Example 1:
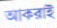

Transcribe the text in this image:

আকরাই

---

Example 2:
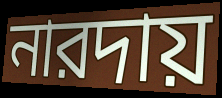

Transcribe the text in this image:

নারদায়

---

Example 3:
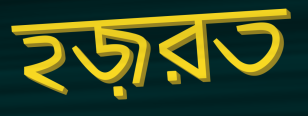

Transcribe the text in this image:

হজ়রত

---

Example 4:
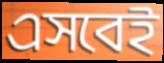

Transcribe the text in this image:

এসবেই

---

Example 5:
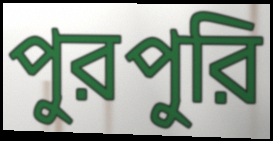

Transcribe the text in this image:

পুরপুরি